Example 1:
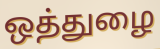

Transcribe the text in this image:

ஒத்துழை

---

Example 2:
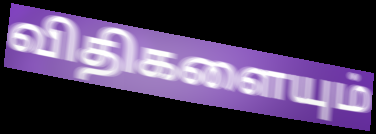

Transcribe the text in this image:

விதிகளையும்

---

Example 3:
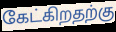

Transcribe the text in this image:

கேட்கிறதற்கு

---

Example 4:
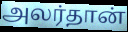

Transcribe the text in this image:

அலர்தான்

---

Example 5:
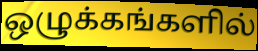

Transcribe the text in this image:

ஒழுக்கங்களில்